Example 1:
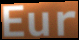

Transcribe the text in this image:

Eur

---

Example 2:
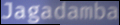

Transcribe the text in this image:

Jagadamba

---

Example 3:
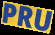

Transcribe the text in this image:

PRU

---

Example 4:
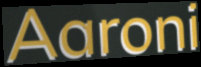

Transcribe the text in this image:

Aaroni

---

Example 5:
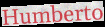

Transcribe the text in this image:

Humberto